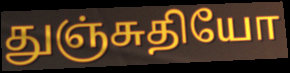
துஞ்சுதியோ